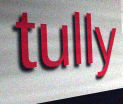
tully